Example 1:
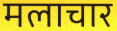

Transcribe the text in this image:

मलाचार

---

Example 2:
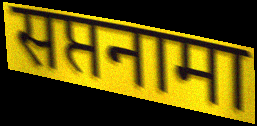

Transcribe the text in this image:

सप्तनामा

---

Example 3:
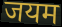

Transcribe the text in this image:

जयम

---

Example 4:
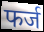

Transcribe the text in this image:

फर्ज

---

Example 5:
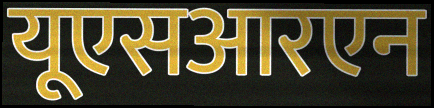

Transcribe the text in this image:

यूएसआरएन